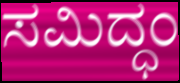
ಸಮಿದ್ಧಂ